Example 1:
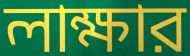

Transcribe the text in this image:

লাক্ষার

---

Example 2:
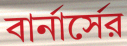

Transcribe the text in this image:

বার্নার্সের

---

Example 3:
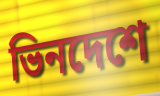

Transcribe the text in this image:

ভিনদেশে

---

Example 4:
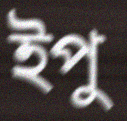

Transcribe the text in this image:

ইপু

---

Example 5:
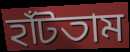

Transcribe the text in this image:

হাঁটতাম